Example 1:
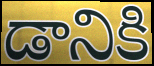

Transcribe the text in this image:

డానికి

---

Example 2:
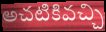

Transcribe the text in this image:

అచటికివచ్చి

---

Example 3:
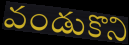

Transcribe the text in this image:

వండుకొని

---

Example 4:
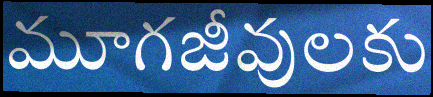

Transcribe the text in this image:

మూగజీవులకు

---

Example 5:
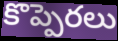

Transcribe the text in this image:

కొప్పెరలు